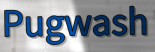
Pugwash